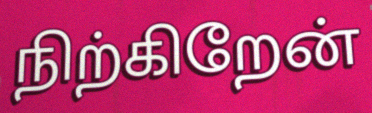
நிற்கிறேன்